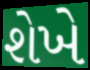
શેખે